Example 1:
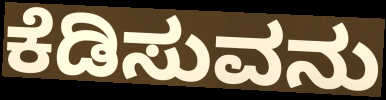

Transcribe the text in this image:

ಕೆಡಿಸುವನು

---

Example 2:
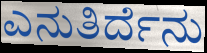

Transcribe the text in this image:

ಎನುತಿರ್ದೆನು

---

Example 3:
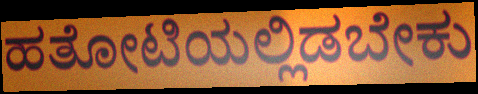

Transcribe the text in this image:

ಹತೋಟಿಯಲ್ಲಿಡಬೇಕು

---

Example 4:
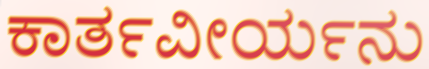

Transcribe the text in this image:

ಕಾರ್ತವೀರ್ಯನು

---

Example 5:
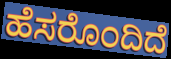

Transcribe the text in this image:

ಹೆಸರೊಂದಿದೆ